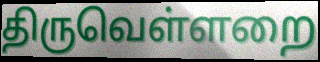
திருவெள்ளறை